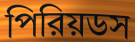
পিরিয়ডস